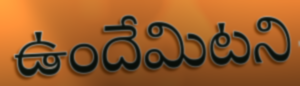
ఉందేమిటని